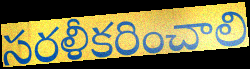
సరళీకరించాలి